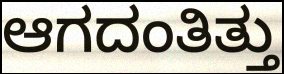
ಆಗದಂತಿತ್ತು